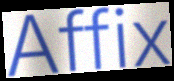
Affix